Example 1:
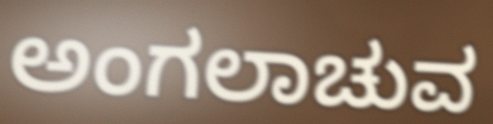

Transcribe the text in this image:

ಅಂಗಲಾಚುವ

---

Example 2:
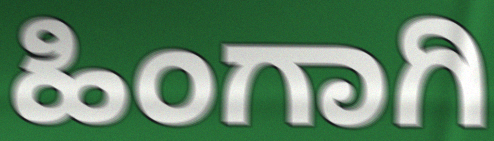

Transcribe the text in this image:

ಹಿಂಗಾಗಿ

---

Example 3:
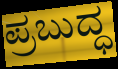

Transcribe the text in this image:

ಪ್ರಬುದ್ಧ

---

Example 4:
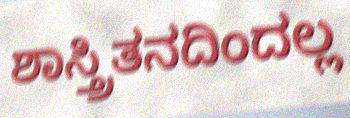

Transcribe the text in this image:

ಶಾಸ್ತ್ರಿತನದಿಂದಲ್ಲ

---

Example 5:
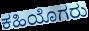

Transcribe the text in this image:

ಕಹಿಯೊಗರು